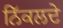
ਨਿੱਕਲਦੇ